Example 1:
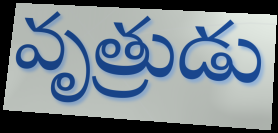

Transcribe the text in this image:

వృత్రుడు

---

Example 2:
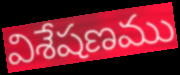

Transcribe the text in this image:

విశేషణము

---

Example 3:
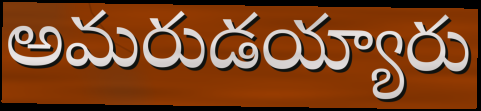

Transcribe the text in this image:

అమరుడయ్యారు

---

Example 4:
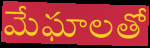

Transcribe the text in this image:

మేఘాలతో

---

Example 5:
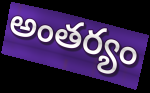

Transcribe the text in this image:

అంతర్యం